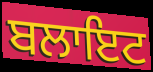
ਬਲਾਇਟ